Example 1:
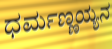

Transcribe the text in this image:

ಧರ್ಮಣ್ಣಯ್ಯನ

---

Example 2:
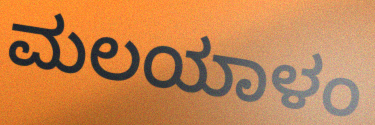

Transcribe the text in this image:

ಮಲಯಾಳಂ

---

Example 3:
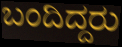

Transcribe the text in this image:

ಬಂದಿದ್ದರು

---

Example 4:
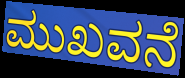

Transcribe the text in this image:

ಮುಖವನೆ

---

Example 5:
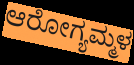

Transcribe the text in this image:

ಆರೋಗ್ಯಮ್ಮಳ